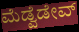
ಮೆಡ್ವೆಡೇವ್